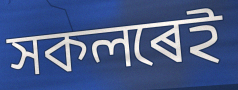
সকলৰেই